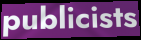
publicists